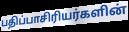
பதிப்பாசிரியர்களின்